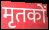
मृतकों